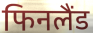
फिनलैंड